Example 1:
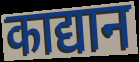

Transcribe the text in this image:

काद्यान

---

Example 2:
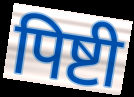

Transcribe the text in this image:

पिष्टी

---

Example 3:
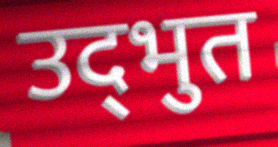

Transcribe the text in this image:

उद्भुत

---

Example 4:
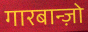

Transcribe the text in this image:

गारबान्ज़ो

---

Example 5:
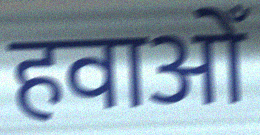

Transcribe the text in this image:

हवाओँ